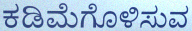
ಕಡಿಮೆಗೊಳಿಸುವ